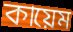
কায়েম